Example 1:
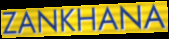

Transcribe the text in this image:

ZANKHANA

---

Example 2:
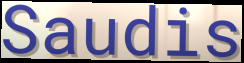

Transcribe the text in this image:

Saudis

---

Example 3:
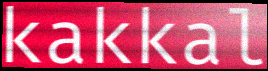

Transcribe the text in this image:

kakkal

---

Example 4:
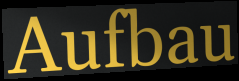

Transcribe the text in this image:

Aufbau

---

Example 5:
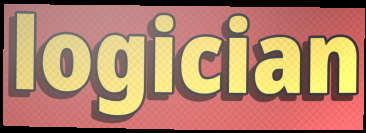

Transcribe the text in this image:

logician